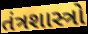
તંત્રશાસ્ત્રો